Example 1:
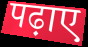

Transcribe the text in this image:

पढ़ाए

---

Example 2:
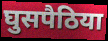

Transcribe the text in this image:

घुसपैठिया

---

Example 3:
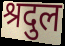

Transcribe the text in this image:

श्रदुल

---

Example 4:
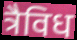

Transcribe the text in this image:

त्रैविध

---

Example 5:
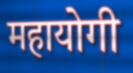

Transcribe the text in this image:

महायोगी